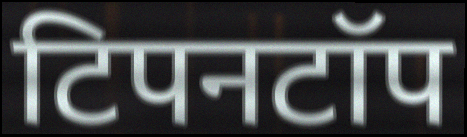
टिपनटॉप